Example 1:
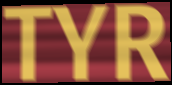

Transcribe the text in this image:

TYR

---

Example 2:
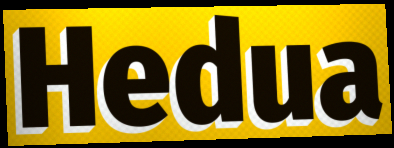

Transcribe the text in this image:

Hedua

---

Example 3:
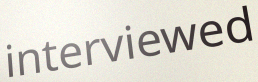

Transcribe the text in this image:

interviewed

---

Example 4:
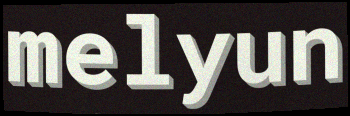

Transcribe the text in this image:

melyun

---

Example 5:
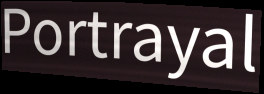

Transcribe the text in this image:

Portrayal